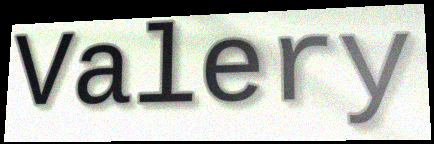
Valery